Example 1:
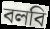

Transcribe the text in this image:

বলবি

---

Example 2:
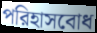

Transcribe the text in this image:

পরিহাসবোধ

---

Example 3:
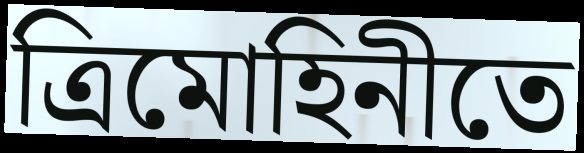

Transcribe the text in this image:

ত্রিমোহিনীতে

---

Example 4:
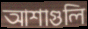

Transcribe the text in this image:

আশাগুলি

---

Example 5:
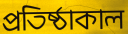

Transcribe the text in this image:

প্রতিষ্ঠাকাল